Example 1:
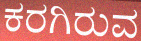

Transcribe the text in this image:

ಕರಗಿರುವ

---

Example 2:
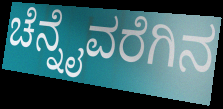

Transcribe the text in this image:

ಚೆನ್ನೈವರೆಗಿನ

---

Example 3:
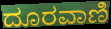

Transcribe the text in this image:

ದೂರವಾಣಿ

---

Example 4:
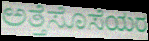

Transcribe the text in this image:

ಅತ್ತೆಸೊಸೆಯರ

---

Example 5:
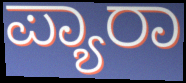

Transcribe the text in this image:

ಪ್ಯಾರಾ